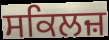
ਸਕਿਲਜ਼